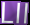
LII